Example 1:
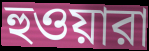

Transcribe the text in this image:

হুওয়ারা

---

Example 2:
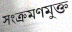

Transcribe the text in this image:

সংক্রমণমুক্ত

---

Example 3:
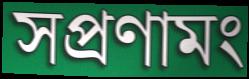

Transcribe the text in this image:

সপ্রণামং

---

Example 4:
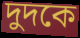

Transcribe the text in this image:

দুদকে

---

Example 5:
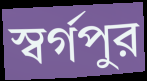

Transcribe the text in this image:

স্বর্গপুর